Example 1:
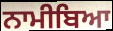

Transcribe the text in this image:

ਨਾਮੀਬਿਆ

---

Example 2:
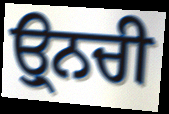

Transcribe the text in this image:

ਉ੍ਨਚੀ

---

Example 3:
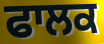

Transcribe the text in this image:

ਫਾਲਕ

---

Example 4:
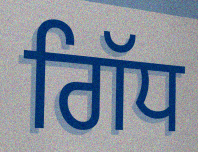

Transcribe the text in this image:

ਗਿੱਧ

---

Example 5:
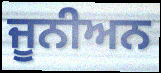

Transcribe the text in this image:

ਜੂਨੀਅਨ